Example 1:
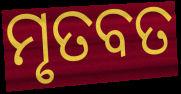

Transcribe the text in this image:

ମୃତବତ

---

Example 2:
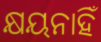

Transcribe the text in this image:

କ୍ଷୟନାହିଁ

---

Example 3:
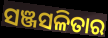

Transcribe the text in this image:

ସଞ୍ଜସଳିତାର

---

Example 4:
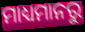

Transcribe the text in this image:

ମାଧ୍ୟମାନରୁ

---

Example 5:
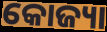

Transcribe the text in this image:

କୋଜ୍ୟା